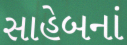
સાહેબનાં